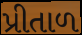
પ્રીતાળ